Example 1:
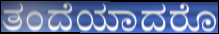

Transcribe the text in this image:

ತಂದೆಯಾದರೊ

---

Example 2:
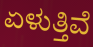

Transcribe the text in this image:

ಏಳುತ್ತಿವೆ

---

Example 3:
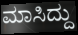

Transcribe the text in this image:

ಮಾಸಿದ್ದು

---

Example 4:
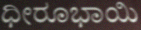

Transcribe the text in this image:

ಧೀರೂಭಾಯಿ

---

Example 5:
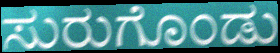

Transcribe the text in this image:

ಸುರುಗೊಂಡು